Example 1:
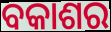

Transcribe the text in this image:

ବକାଶର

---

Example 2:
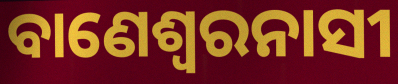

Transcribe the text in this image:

ବାଣେଶ୍ୱରନାସୀ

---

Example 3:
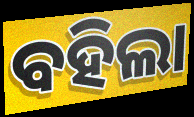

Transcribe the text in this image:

ବହିଲା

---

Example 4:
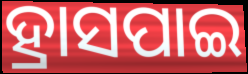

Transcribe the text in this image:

ହ୍ରାସପାଇ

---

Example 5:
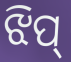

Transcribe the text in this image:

ଝିପ୍